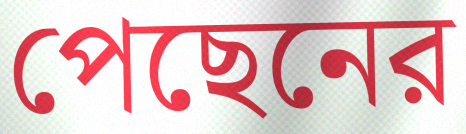
পেছেনের